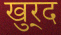
खुर्द